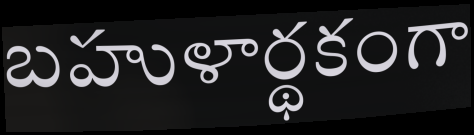
బహుళార్థకంగా